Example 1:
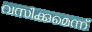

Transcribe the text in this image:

വസിക്കുമെന്ന്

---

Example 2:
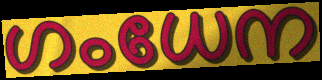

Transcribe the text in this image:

ഗംധേന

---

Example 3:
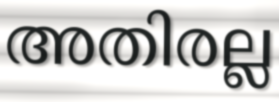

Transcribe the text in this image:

അതിരല്ല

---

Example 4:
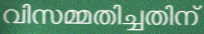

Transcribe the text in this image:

വിസമ്മതിച്ചതിന്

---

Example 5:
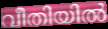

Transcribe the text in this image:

വീതിയിൽ